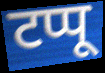
टप्पू